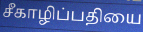
சீகாழிப்பதியை